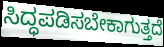
ಸಿದ್ಧಪಡಿಸಬೇಕಾಗುತ್ತದೆ